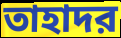
তাহাদর